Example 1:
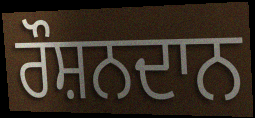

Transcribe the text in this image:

ਰੌਸ਼ਨਦਾਨ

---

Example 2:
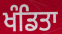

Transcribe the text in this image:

ਖੰਡਿਤਾ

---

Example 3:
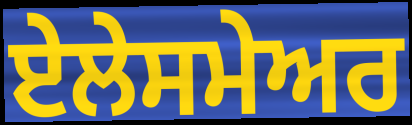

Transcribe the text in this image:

ਏਲੇਸਮੇਅਰ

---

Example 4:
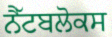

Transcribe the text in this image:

ਨੈੱਟਬਲੋਕਸ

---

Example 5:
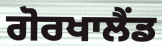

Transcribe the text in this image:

ਗੋਰਖਾਲੈਂਡ